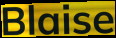
Blaise